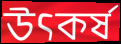
উৎকৰ্ষ